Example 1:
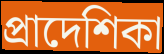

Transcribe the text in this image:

প্রাদেশিকা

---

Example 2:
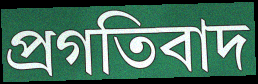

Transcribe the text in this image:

প্রগতিবাদ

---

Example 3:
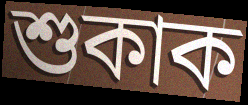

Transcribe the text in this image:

শুকাক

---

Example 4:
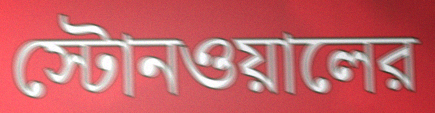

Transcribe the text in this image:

স্টোনওয়ালের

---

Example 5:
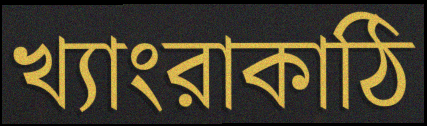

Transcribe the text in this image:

খ্যাংরাকাঠি